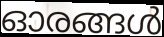
ഓരങ്ങൾ